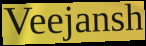
Veejansh